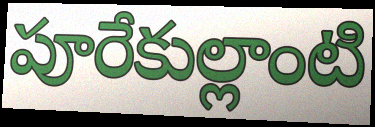
పూరేకుల్లాంటి